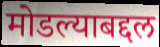
मोडल्याबद्दल